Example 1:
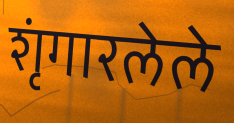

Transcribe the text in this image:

शृंगारलेले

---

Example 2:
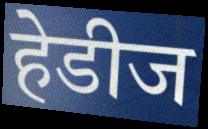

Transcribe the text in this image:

हेडीज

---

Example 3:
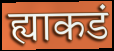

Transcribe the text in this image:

ह्याकडं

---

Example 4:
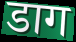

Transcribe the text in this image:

डाग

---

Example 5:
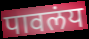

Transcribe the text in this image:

पावलंय